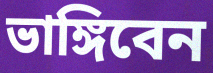
ভাঙ্গিবেন